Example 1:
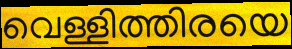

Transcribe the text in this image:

വെള്ളിത്തിരയെ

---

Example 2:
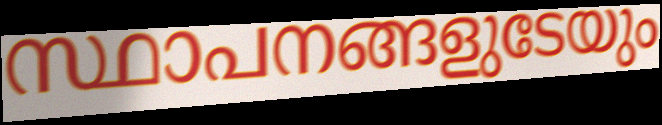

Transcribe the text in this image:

സ്ഥാപനങ്ങളുടേയും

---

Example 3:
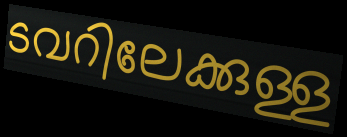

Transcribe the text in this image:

ടവറിലേക്കുള്ള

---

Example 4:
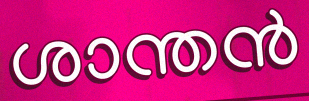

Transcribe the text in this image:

ശാന്തൻ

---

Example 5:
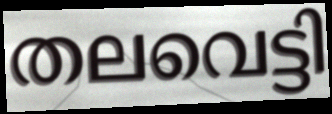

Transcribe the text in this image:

തലവെട്ടി